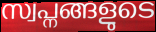
സ്വപ്നങ്ങളുടെ